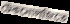
টেকনোলজিতে